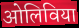
ओलिविया